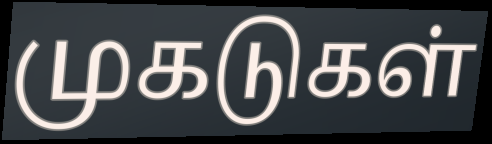
முகடுகள்